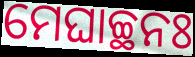
ମେଘାଚ୍ଛନଃ